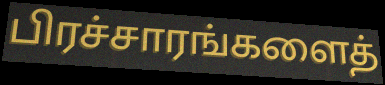
பிரச்சாரங்களைத்